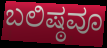
ಬಲಿಷ್ಠವೂ